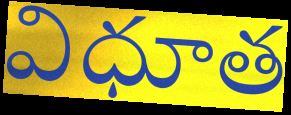
విధూత